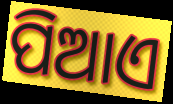
ପିଆଏ